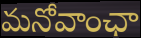
మనోవాంఛా